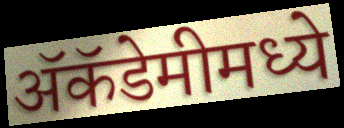
ॲकॅडेमीमध्ये